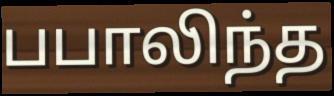
பபாலிந்த